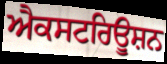
ਐਕਸਟਰਿਊਸ਼ਨ